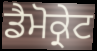
ਡੈਮੋਕ੍ਰੇਟ